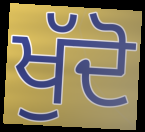
ਖੁੱਦੋ